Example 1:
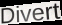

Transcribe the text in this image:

Divert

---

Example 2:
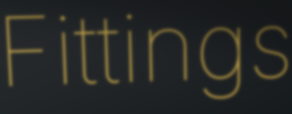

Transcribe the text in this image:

Fittings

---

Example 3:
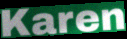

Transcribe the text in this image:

Karen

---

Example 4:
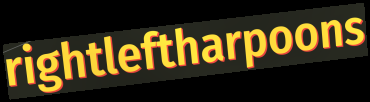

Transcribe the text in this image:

rightleftharpoons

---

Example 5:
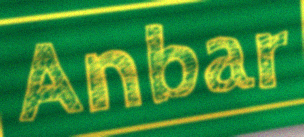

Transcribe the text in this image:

Anbar